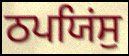
ਠਪਯਿਂਸੁ